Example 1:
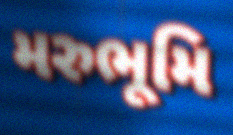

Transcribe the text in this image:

મરુભૂમિ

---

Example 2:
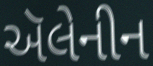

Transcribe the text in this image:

ઍલેનીન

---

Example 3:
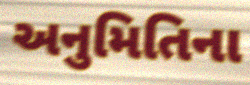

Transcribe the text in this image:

અનુમિતિના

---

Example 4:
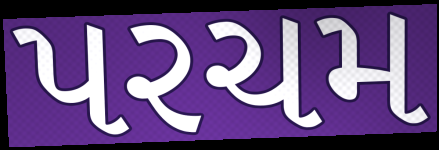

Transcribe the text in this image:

પરચમ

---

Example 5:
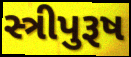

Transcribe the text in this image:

સ્ત્રીપુરૂષ